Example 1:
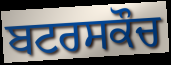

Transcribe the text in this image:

ਬਟਰਸਕੌਚ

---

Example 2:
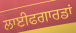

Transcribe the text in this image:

ਲਾਈਫਗਾਰਡਾਂ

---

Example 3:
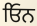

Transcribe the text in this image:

ਓਿਨ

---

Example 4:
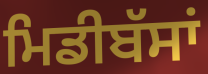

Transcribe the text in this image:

ਮਿਡੀਬੱਸਾਂ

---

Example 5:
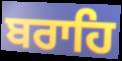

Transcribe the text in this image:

ਬਰਾਹਿ